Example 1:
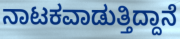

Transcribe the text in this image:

ನಾಟಕವಾಡುತ್ತಿದ್ದಾನೆ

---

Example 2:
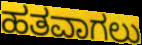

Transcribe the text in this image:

ಹತವಾಗಲು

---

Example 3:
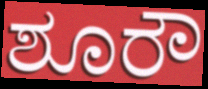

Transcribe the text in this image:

ಶೂರೌ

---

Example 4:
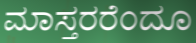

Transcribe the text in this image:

ಮಾಸ್ತರರೆಂದೂ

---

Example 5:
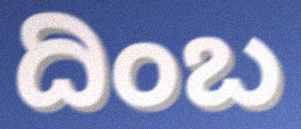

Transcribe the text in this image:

ದಿಂಬ